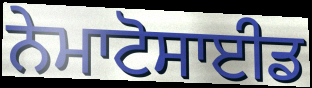
ਨੇਮਾਟੋਸਾਈਡ